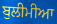
ਬੁਲੀਮੀਆ